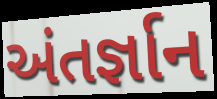
અંતર્જ્ઞાન